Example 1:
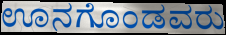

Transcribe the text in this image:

ಊನಗೊಂಡವರು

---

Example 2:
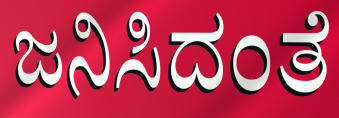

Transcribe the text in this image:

ಜನಿಸಿದಂತೆ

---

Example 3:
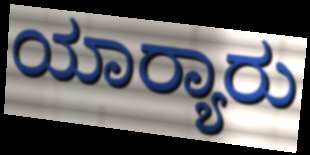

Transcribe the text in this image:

ಯಾರ‍್ಯಾರು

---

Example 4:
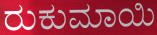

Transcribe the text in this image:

ರುಕುಮಾಯಿ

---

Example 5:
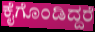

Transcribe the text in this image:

ಕೈಗೊಂಡಿದ್ದರೆ